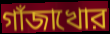
গাঁজাখোর